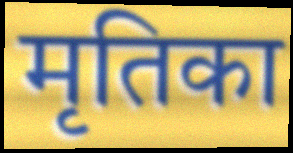
मृतिका